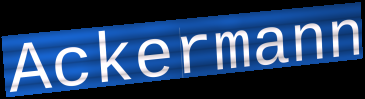
Ackermann